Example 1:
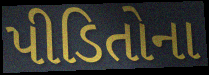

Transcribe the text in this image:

પીડિતોના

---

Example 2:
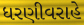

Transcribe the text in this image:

ધરણીવરાહે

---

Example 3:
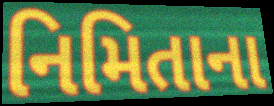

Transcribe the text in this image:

નિમિતાના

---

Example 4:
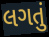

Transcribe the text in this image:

લગતું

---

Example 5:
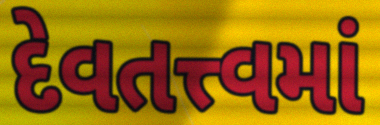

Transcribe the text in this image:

દેવતત્ત્વમાં